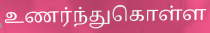
உணர்ந்துகொள்ள